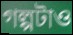
গল্পটাও